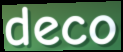
deco